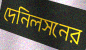
দেনিলসনের